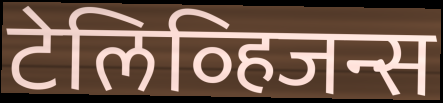
टेलिव्हिजन्स